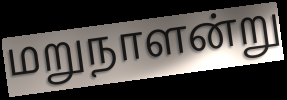
மறுநாளன்று